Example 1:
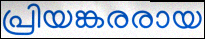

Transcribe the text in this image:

പ്രിയങ്കരരായ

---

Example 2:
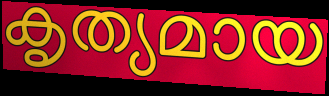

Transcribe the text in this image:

കൃത്യമായ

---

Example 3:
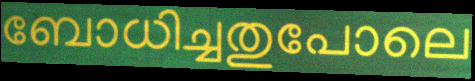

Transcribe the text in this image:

ബോധിച്ചതുപോലെ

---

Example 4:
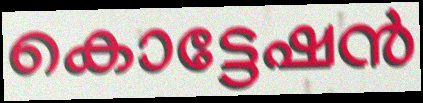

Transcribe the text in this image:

കൊട്ടേഷൻ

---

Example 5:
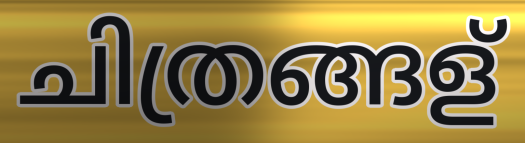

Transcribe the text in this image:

ചിത്രങ്ങള്